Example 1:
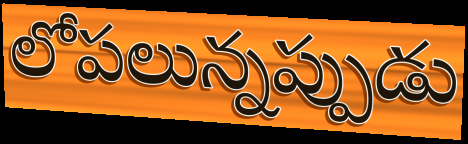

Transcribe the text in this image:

లోపలున్నప్పుడు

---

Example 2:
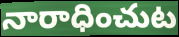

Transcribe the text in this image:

నారాధించుట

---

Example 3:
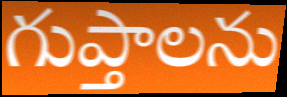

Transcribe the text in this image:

గుప్తాలను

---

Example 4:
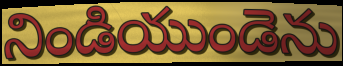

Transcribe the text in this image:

నిండియుండెను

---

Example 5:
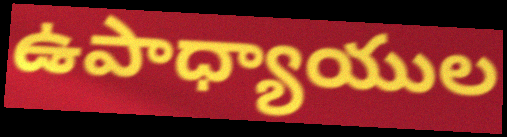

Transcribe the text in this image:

ఉపాధ్యాయుల